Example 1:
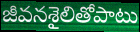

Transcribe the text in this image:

జీవనశైలితోపాటు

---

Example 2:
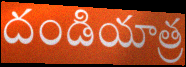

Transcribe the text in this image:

దండియాత్ర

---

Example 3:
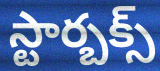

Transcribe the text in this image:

స్టార్బక్స్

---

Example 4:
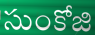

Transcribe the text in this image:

సుంకోజి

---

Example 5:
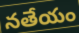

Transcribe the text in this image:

నతేయం